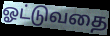
ஓட்டுவதை